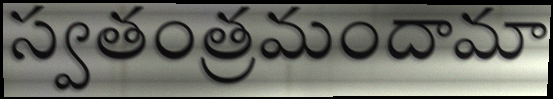
స్వతంత్రమందామా